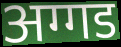
अग्गड